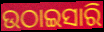
ଉଠାଇସାରି